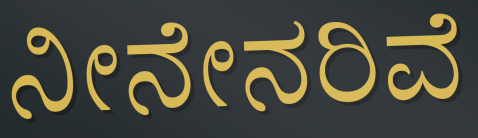
ನೀನೇನರಿವೆ